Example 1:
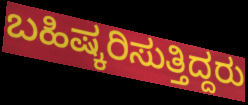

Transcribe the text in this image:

ಬಹಿಷ್ಕರಿಸುತ್ತಿದ್ದರು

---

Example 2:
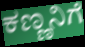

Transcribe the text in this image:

ಕಣ್ಣನಿಗೆ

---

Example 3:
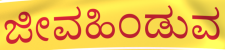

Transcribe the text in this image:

ಜೀವಹಿಂಡುವ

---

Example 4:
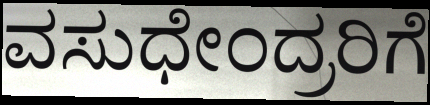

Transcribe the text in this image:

ವಸುಧೇಂದ್ರರಿಗೆ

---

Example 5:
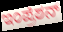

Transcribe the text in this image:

ಇಂಪ್ರೆಶನ್